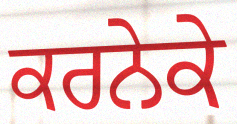
ਕਰਨੇਕੇ